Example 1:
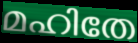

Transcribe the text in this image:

മഹിതേ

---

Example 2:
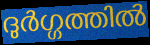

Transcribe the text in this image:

ദുർഗ്ഗത്തിൽ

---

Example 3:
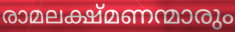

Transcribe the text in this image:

രാമലക്ഷ്മണന്മാരും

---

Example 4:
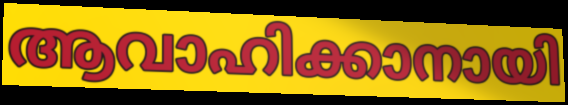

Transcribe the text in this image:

ആവാഹിക്കാനായി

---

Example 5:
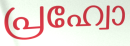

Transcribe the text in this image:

പ്രഹ്വോ